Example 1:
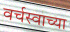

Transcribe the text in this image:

वर्चस्वाच्या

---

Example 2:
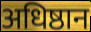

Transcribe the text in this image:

अधिष्ठान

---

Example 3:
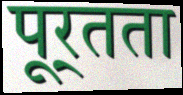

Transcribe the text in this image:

पूर्तता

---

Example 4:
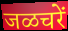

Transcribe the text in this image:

जळचरें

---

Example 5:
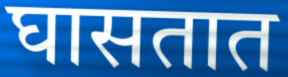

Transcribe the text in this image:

घासतात